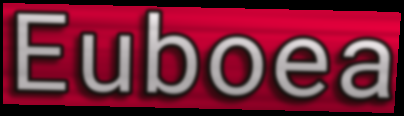
Euboea